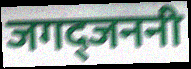
जगद्जननी